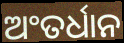
ଅଂତର୍ଧାନ